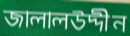
জালালউদ্দীন